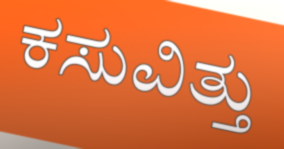
ಕಸುವಿತ್ತು